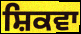
ਸ਼ਿਕਵਾ